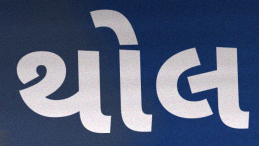
થોલ